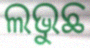
ଲଭୁଛ